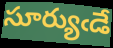
సూర్యుఁడే